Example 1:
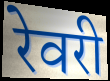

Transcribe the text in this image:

रेवरी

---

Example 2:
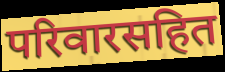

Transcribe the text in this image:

परिवारसहित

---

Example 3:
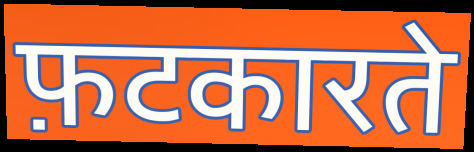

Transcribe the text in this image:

फ़टकारते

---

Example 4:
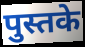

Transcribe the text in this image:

पुस्तके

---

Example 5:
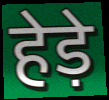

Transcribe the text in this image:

हेड़े